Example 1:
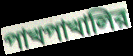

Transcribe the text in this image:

পাখপাখালির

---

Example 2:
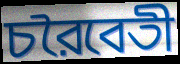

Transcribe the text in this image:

চরৈবেতী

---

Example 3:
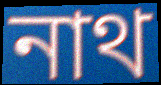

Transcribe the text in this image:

নাথ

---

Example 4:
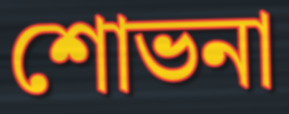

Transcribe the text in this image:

শোভনা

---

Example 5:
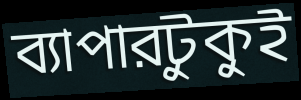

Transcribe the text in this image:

ব্যাপারটুকুই